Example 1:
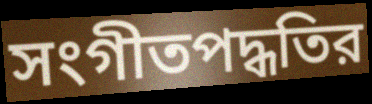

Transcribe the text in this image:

সংগীতপদ্ধতির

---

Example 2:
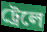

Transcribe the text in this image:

ট্রেলে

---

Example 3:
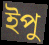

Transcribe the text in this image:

ইপু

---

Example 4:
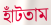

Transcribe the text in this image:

হাঁটতাম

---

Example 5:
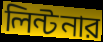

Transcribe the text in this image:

লিন্টনার